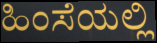
ಹಿಂಸೆಯಲ್ಲಿ